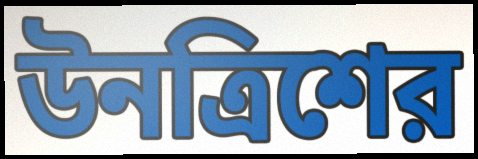
উনত্রিশের